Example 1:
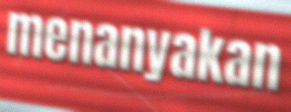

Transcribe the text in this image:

menanyakan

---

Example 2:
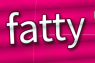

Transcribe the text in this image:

fatty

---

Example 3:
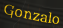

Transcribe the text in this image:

Gonzalo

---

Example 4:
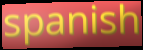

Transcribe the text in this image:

spanish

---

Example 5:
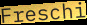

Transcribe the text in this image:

Freschi